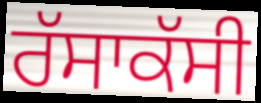
ਰੱਸਾਕੱਸੀ